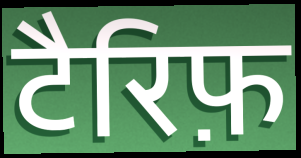
टैरिफ़